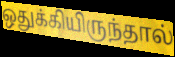
ஒதுக்கியிருந்தால்